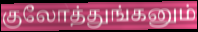
குலோத்துங்கனும்